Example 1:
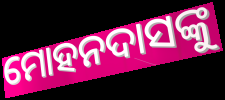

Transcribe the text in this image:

ମୋହନଦାସଙ୍କୁ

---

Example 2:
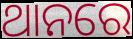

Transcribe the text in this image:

ଥାନରେ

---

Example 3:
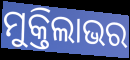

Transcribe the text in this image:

ମୁକ୍ତିଲାଭର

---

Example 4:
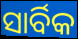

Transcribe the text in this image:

ସାର୍ବିକ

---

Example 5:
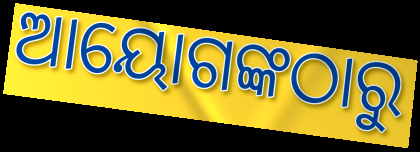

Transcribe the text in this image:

ଆୟୋଗଙ୍କଠାରୁ